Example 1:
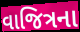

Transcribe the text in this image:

વાજિત્રના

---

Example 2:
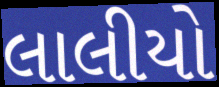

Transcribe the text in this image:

લાલીયો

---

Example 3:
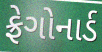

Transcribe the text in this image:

ફ્રેગોનાર્ડ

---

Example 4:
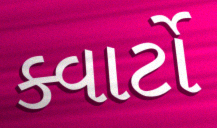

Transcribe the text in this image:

ક્વાર્ટો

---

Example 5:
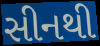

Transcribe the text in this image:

સીનથી